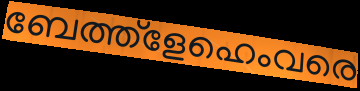
ബേത്ത്ളേഹെംവരെ